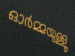
ഓർമ്മയുള്ളൂ